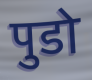
पुडो